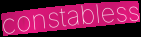
constabless